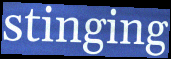
stinging